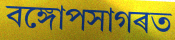
বঙ্গোপসাগৰত